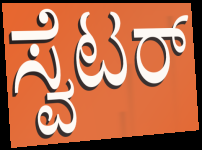
ಸ್ವೆಟರ್